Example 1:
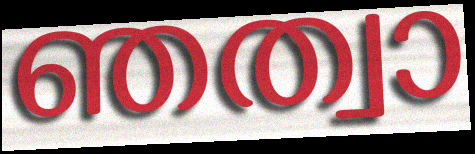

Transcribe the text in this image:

ഞത്വാ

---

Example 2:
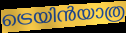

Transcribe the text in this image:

ട്രെയിൻയാത്ര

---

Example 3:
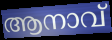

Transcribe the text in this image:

ആനാവ്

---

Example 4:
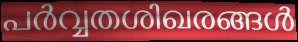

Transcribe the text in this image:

പർവ്വതശിഖരങ്ങൾ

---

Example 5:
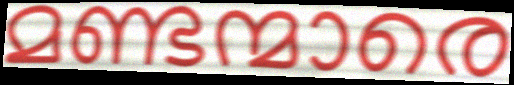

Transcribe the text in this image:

മണ്ടന്മാരെ